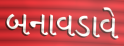
બનાવડાવે